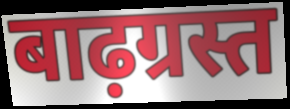
बाढ़ग्रस्त